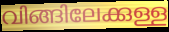
വിങ്ങിലേക്കുള്ള